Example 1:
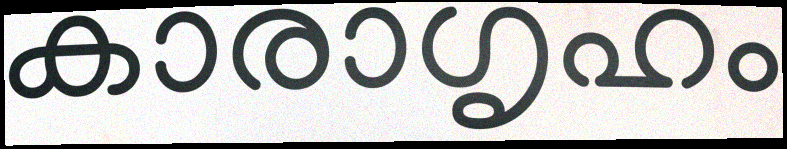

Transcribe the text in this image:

കാരാഗൃഹം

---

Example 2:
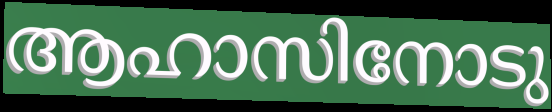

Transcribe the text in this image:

ആഹാസിനോടു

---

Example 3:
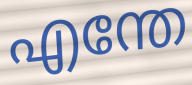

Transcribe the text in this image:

എന്തേ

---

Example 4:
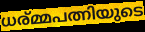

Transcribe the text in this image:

ധര്മ്മപത്നിയുടെ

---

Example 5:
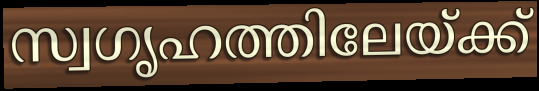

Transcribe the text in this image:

സ്വഗൃഹത്തിലേയ്ക്ക്